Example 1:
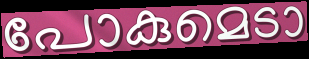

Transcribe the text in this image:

പോകുമെടാ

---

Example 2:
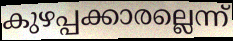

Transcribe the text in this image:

കുഴപ്പക്കാരല്ലെന്ന്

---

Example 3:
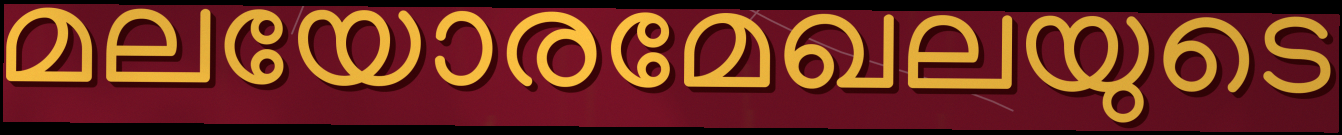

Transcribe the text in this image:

മലയോരമേഖലയുടെ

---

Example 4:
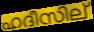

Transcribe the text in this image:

ഹദീസില്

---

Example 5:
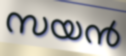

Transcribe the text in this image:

സയൻ